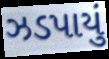
ઝડપાયું